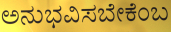
ಅನುಭವಿಸಬೇಕೆಂಬ